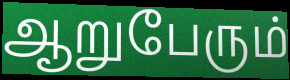
ஆறுபேரும்